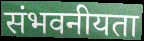
संभवनीयता